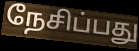
நேசிப்பது